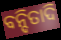
ବନ୍ଦିତାଦି